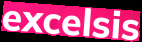
excelsis